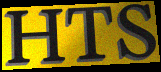
HTS